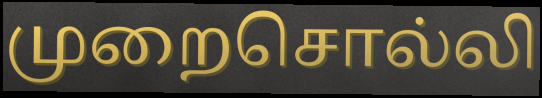
முறைசொல்லி